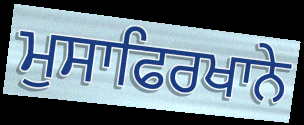
ਮੁਸਾਫਿਰਖਾਨੇ